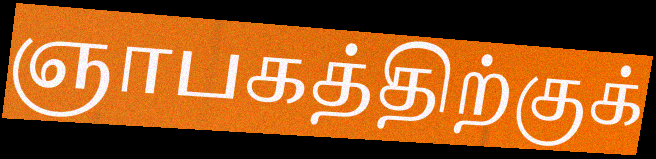
ஞாபகத்திற்குக்